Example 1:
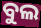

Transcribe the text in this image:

ବୁଲ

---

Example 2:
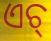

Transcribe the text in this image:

ଏଚ୍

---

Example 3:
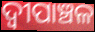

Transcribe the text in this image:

ଦ୍ୱୀପାଞ୍ଚଳ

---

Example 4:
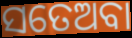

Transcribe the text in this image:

ସତେଅବା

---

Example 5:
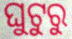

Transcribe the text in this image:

ଘୁଟୁରୁ